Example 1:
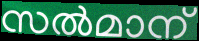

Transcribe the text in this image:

സൽമാന്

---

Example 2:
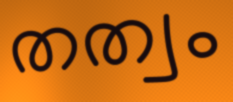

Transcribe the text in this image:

തത്വം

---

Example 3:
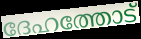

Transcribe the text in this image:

ദേഹത്തോട്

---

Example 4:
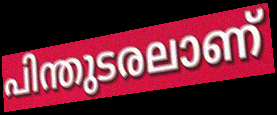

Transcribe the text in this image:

പിന്തുടരലാണ്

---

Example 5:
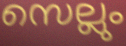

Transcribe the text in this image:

സെല്ലും